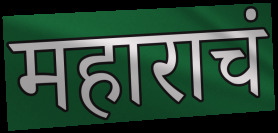
महाराचं